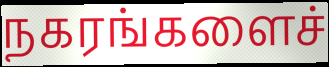
நகரங்களைச்